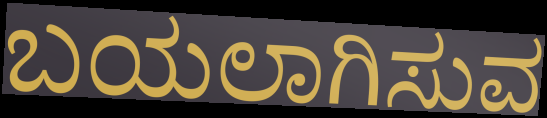
ಬಯಲಾಗಿಸುವ